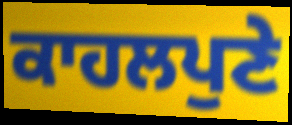
ਕਾਹਲਪੁਣੇ